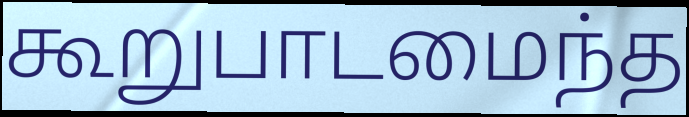
கூறுபாடமைந்த